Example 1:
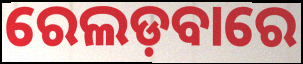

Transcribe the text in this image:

ରେଲଡ଼ବାରେ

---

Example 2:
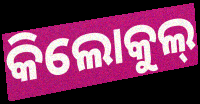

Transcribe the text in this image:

କିଲୋକୁଲ୍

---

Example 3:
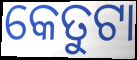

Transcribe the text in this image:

କେତୁଟା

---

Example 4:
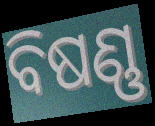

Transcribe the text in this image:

ବିଷଣ୍ଣ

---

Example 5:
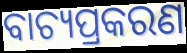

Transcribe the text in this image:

ବାଚ୍ୟପ୍ରକରଣ